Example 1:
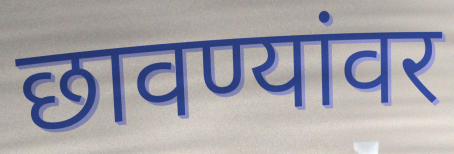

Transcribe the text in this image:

छावण्यांवर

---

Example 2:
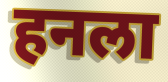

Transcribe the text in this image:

हनला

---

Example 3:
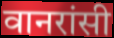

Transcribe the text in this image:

वानरांसी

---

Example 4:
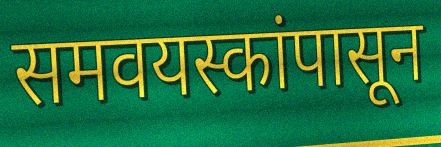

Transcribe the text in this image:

समवयस्कांपासून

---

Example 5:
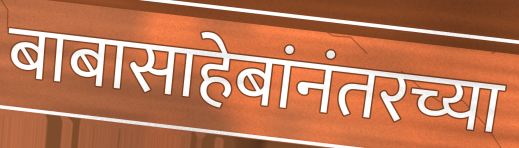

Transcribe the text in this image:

बाबासाहेबांनंतरच्या